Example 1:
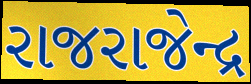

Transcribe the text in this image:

રાજરાજેન્દ્ર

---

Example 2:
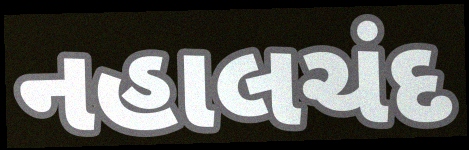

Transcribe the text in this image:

નહાલચંદ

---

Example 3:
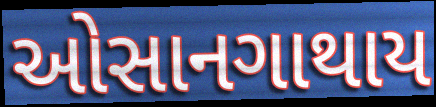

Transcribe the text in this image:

ઓસાનગાથાય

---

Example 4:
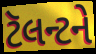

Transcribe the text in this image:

ટૅલન્ટને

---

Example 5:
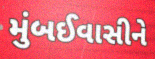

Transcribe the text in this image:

મુંબઈવાસીને